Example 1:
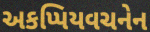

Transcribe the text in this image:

અકપ્પિયવચનેન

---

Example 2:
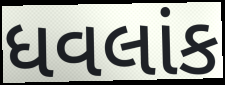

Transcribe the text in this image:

ધવલાંક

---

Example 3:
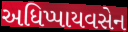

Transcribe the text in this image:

અધિપ્પાયવસેન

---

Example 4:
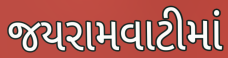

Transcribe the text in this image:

જયરામવાટીમાં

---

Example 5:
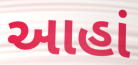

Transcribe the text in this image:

આહાં